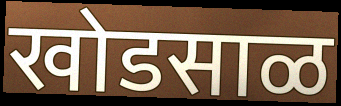
खोडसाळ